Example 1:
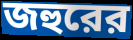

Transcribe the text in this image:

জহুরের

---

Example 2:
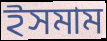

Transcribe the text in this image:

ইসমাম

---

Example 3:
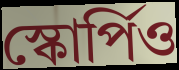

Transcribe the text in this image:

স্কোর্পিও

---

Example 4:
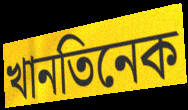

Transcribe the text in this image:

খানতিনেক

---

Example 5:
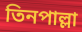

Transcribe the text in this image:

তিনপাল্লা